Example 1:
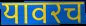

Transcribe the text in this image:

यावरच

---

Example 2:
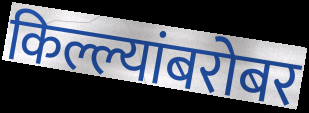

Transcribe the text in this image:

किल्ल्यांबरोबर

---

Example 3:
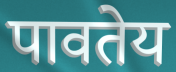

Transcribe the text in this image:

पावतेय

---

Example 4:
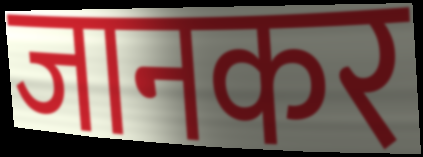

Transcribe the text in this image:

जानकर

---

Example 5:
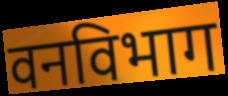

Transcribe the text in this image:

वनविभाग